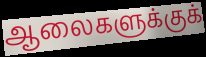
ஆலைகளுக்குக்